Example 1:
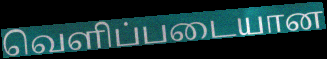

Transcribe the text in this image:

வெளிப்படையான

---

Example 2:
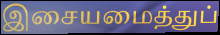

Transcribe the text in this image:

இசையமைத்துப்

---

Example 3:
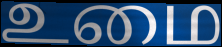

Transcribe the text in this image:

உமை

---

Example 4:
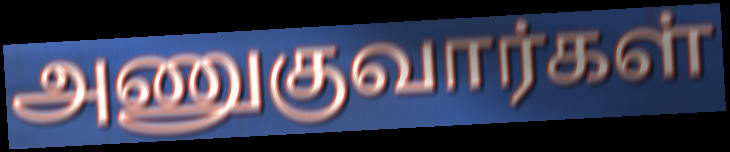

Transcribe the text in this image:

அணுகுவார்கள்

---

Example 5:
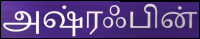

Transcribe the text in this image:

அஷ்ரஃபின்